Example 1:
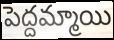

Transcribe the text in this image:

పెద్దమ్మాయి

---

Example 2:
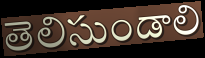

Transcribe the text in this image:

తెలిసుండాలి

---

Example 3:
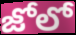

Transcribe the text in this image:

జోలో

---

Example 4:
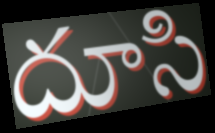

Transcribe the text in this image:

దూసి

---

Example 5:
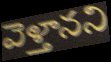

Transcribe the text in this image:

వెళ్తానని